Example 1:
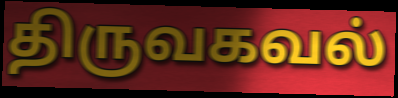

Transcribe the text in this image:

திருவகவல்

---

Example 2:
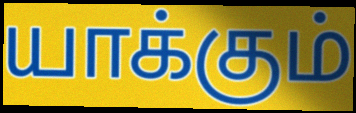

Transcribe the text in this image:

யாக்கும்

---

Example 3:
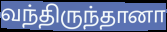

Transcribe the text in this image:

வந்திருந்தானா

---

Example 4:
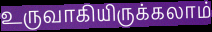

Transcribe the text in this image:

உருவாகியிருக்கலாம்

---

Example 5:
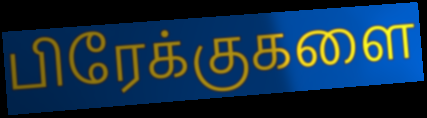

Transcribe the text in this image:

பிரேக்குகளை